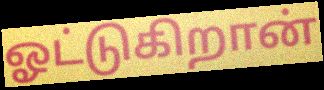
ஓட்டுகிறான்